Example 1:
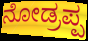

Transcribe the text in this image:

ನೋಡ್ರಪ್ಪ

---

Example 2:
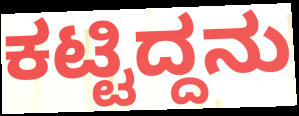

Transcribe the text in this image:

ಕಟ್ಟಿದ್ದನು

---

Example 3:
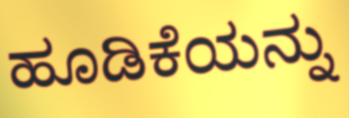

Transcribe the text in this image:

ಹೂಡಿಕೆಯನ್ನು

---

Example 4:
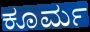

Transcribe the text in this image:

ಕೂರ್ಮ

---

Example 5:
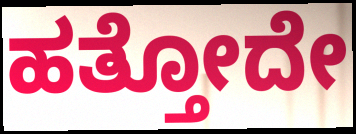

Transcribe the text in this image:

ಹತ್ತೋದೇ